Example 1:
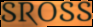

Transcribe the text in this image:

SROSS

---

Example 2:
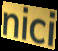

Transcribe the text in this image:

nici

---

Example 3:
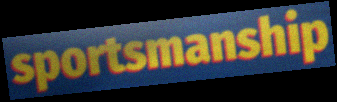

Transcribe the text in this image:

sportsmanship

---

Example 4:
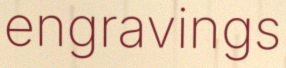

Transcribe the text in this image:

engravings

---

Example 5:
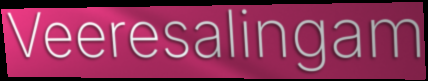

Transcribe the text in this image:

Veeresalingam